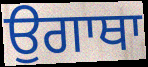
ਉਗਾਥਾ